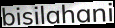
bisilahani